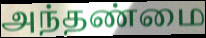
அந்தண்மை